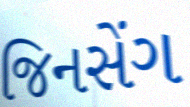
જિનસેંગ